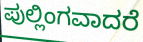
ಪುಲ್ಲಿಂಗವಾದರೆ